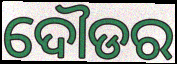
ଦୌଡର